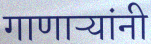
गाणाऱ्यांनी